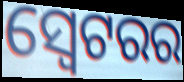
ସ୍ୱେଟରର